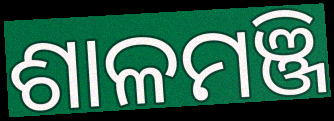
ଶାଳମଞ୍ଜି